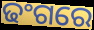
ଢଂଗରେ